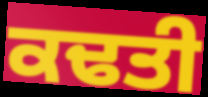
ਕਢਤੀ